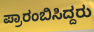
ಪ್ರಾರಂಬಿಸಿದ್ದರು